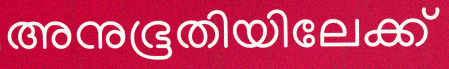
അനുഭൂതിയിലേക്ക്